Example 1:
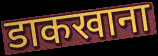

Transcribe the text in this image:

डाकखाना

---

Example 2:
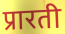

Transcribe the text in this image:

प्रारती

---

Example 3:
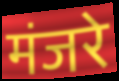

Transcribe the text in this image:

मंजरे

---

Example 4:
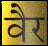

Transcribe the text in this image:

वैर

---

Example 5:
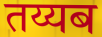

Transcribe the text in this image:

तय्यब